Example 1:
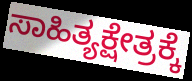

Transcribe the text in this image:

ಸಾಹಿತ್ಯಕ್ಷೇತ್ರಕ್ಕೆ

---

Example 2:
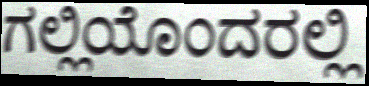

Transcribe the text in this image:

ಗಲ್ಲಿಯೊಂದರಲ್ಲಿ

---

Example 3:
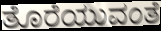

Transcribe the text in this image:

ತೊರೆಯುವಂತೆ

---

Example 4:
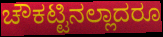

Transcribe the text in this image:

ಚೌಕಟ್ಟಿನಲ್ಲಾದರೂ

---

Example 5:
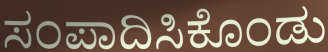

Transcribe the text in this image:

ಸಂಪಾದಿಸಿಕೊಂಡು